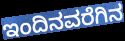
ಇಂದಿನವರೆಗಿನ